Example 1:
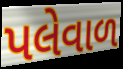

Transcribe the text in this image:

પલેવાળ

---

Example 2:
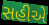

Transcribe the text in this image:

સહીએ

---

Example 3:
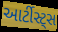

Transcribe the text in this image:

આર્ટીસ્ટ્સ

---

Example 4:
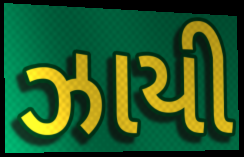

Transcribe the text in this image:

ઝાયી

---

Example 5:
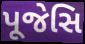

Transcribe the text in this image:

પૂજેસિ